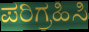
ಪರಿಗ್ರಹಿಸಿ